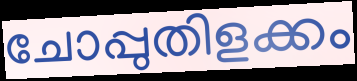
ചോപ്പുതിളക്കം